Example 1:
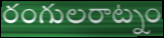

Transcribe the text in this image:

రంగులరాట్నం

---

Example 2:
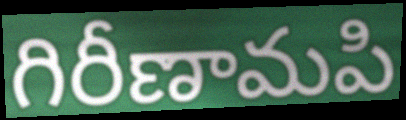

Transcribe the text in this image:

గిరీణామపి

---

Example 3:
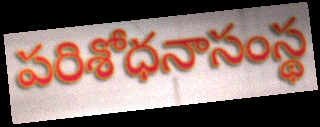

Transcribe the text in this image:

పరిశోధనాసంస్థ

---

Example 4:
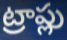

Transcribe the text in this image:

ట్రాప్లు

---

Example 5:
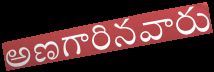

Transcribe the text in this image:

అణగారినవారు